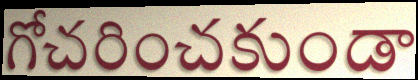
గోచరించకుండా